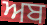
ਅਬ